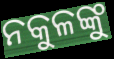
ନକୁଳଙ୍କୁ